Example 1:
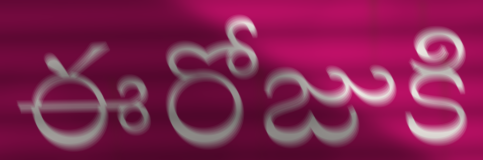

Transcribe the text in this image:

ఈరోజుకి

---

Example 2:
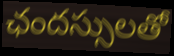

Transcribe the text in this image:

ఛందస్సులతో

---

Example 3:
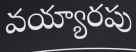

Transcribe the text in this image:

వయ్యారపు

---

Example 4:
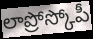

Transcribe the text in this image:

లాప్రోస్కోపీ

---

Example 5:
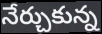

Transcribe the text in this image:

నేర్చుకున్న